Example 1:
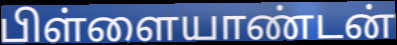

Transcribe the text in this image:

பிள்ளையாண்டன்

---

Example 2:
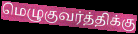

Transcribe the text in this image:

மெழுகுவர்த்திக்கு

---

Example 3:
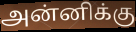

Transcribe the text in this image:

அன்னிக்கு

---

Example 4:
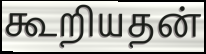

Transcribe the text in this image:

கூறியதன்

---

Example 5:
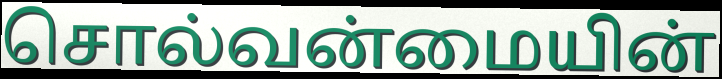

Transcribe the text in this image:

சொல்வன்மையின்